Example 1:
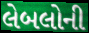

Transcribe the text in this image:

લેબલોની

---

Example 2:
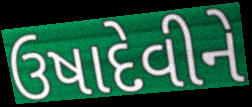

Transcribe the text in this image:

ઉષાદેવીને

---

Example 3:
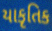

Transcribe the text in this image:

યાકૃતિક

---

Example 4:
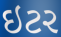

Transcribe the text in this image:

ઇટર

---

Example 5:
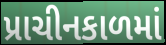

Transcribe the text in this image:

પ્રાચીનકાળમાં